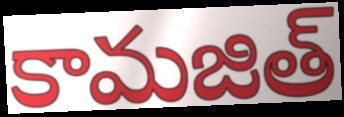
కామజిత్